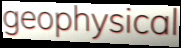
geophysical